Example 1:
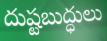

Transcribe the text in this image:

దుష్టబుద్ధులు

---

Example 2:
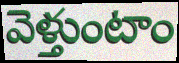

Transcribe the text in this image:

వెళ్తుంటాం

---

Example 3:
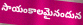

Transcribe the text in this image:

సాయంకాలమైనందున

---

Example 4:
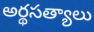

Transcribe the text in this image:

అర్థసత్యాలు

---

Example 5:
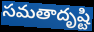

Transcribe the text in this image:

సమతాదృష్టి